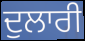
ਦੁਲਾਰੀ